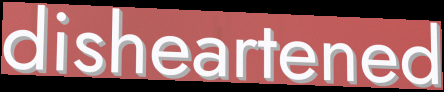
disheartened